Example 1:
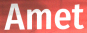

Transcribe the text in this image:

Amet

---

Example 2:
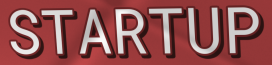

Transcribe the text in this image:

STARTUP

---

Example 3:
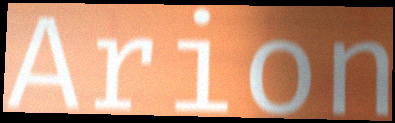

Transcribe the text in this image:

Arion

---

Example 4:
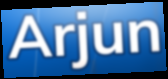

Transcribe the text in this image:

Arjun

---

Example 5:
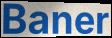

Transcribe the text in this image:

Baner